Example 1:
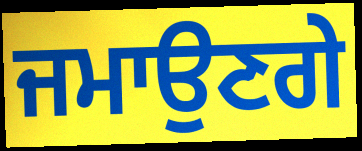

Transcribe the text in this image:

ਜਮਾਉਣਗੇ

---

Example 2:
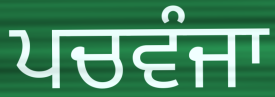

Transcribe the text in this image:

ਪਚਵੰਜਾ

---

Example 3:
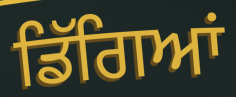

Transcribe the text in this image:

ਡਿੱਗਿਆਂ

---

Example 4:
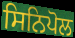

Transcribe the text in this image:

ਸਿਨਿਪੋਲ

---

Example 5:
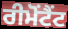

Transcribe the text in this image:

ਰੀਮੋਂਟੈਂਟ